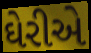
ઘેરીએ